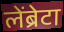
लेंब्रेटा